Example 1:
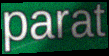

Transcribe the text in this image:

parat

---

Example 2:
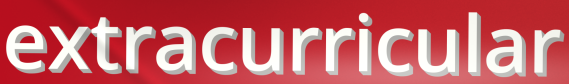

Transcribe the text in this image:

extracurricular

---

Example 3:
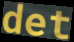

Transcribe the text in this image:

det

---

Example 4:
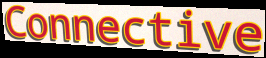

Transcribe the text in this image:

Connective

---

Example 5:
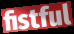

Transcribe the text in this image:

fistful